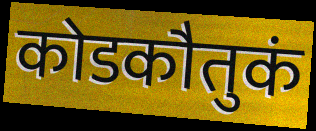
कोडकौतुकं